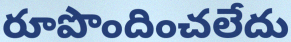
రూపొందించలేదు